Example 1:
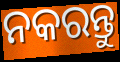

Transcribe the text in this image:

ନକରନ୍ତୁ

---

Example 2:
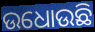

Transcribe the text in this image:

ଉଧୋଉଛି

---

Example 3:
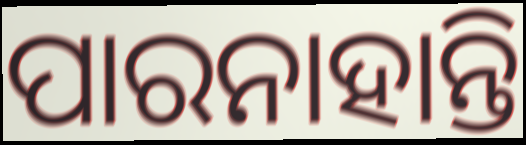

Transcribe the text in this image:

ପାରନାହାନ୍ତି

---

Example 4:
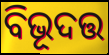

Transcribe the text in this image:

ବିଭୂଦତ୍ତ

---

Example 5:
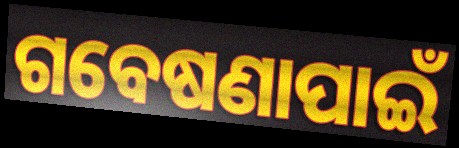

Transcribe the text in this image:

ଗବେଷଣାପାଇଁ